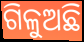
ଗିଳୁଅଛି